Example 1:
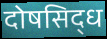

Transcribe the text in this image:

दोषसिद्ध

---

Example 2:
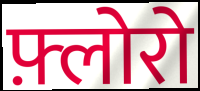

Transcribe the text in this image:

फ़्लोरो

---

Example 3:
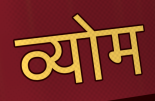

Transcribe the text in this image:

व्योम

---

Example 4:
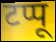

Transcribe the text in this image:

टप्पू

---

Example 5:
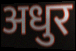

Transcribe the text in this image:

अधुर